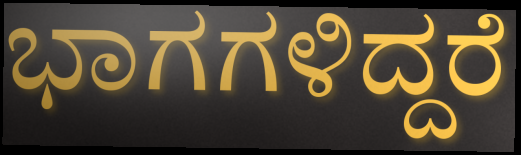
ಭಾಗಗಳಿದ್ದರೆ